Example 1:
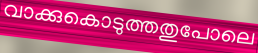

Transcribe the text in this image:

വാക്കുകൊടുത്തതുപോലെ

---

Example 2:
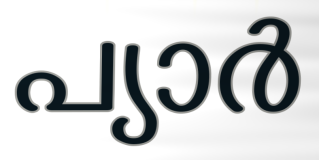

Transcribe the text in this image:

പ്യാർ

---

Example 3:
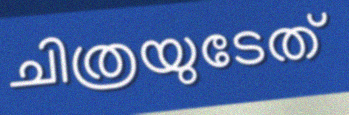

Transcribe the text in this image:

ചിത്രയുടേത്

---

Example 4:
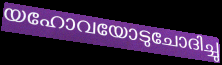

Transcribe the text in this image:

യഹോവയോടുചോദിച്ചു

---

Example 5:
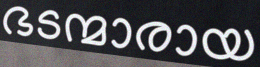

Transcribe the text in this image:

ഭടന്മാരായ